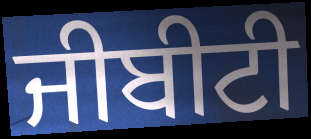
ਜੀਬੀਟੀ